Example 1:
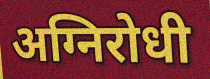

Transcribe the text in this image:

अग्निरोधी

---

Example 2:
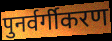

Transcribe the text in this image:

पुनर्वर्गीकरण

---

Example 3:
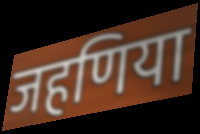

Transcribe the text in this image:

जहणिया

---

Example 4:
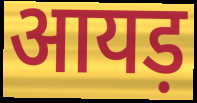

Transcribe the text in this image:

आयड़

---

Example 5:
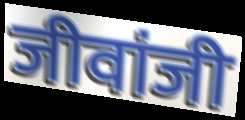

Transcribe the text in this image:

जीवांजी